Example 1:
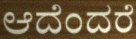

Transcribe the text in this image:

ಆದೆಂದರೆ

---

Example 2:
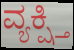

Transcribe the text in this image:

ವ್ಯಕ್ಷ್ತಿ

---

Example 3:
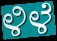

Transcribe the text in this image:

ಳಿಳೆ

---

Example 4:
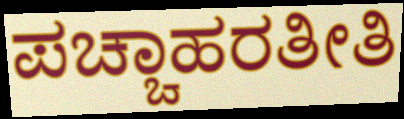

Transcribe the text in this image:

ಪಚ್ಚಾಹರತೀತಿ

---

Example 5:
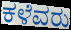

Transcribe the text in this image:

ಕಳೆವರು